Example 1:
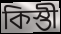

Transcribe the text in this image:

কিস্তী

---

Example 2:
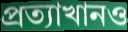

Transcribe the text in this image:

প্রত্যাখানও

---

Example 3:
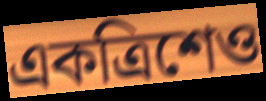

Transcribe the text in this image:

একত্রিশেও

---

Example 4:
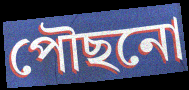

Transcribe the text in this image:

পৌছনো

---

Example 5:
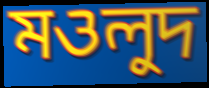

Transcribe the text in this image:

মওলুদ